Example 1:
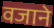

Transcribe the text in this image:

वजाने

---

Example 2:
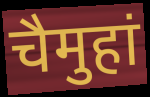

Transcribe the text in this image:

चैमुहां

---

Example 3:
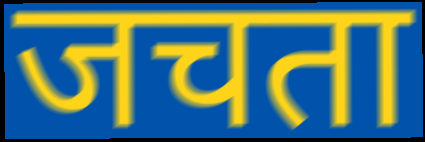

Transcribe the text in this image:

जचता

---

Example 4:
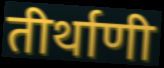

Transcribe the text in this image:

तीर्थाणी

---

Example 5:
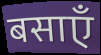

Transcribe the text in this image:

बसाएँ